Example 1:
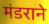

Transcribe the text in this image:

मंडराने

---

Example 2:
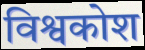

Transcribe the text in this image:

विश्वकोश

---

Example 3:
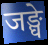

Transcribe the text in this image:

जङ्घे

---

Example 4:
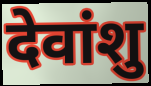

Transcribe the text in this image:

देवांशु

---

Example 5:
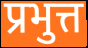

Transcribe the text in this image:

प्रभुत्त